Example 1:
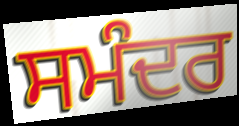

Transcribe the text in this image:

ਸਮੰਦਰ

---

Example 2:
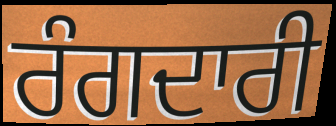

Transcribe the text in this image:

ਰੰਗਦਾਰੀ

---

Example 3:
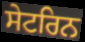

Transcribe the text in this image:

ਸੇਟਰਿਨ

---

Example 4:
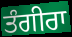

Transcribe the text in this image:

ਤੰਗੀਰਾ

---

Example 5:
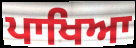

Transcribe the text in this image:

ਪਾਖਿਆ